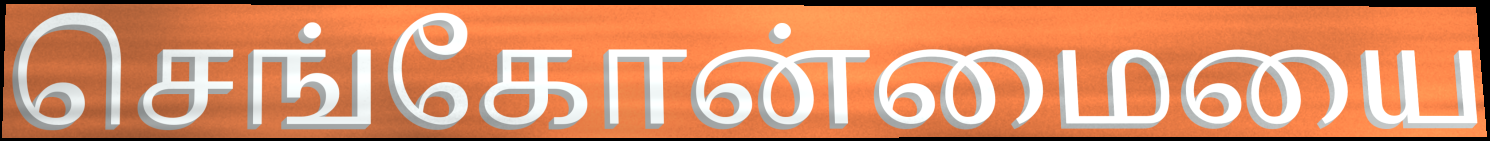
செங்கோன்மையை